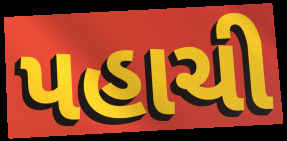
પહાચી